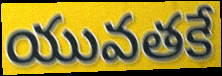
యువతకే